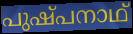
പുഷ്പനാഥ്